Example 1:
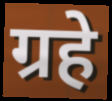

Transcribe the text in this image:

ग्रहे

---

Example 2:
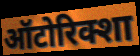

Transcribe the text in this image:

ऑटोरिक्शा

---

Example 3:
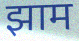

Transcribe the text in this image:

झाम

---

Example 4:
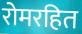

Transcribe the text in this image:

रोमरहित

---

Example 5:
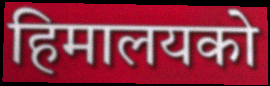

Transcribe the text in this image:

हिमालयको